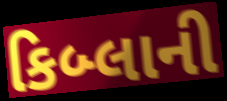
કિબ્લાની